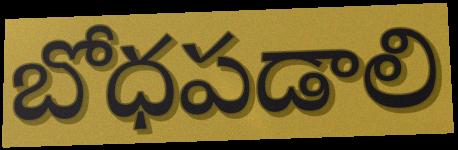
బోధపడాలి